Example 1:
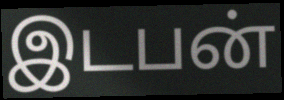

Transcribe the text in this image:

இடபன்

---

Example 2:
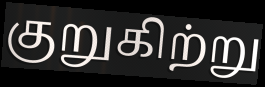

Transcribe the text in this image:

குறுகிற்று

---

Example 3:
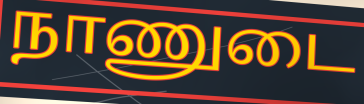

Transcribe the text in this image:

நாணுடை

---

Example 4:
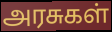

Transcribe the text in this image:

அரசுகள்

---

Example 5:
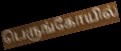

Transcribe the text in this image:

பெருங்கோயில்